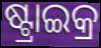
ଷ୍ଟ୍ରାଇକ୍ର